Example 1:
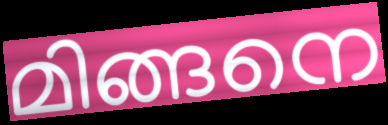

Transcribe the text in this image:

മിങ്ങനെ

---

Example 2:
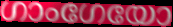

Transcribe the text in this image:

ഗാംഗേയോ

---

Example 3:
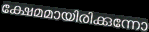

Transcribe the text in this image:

ക്ഷേമമായിരിക്കുന്നോ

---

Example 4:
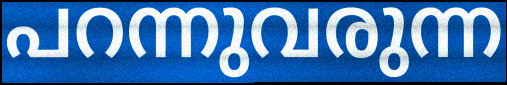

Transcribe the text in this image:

പറന്നുവരുന്ന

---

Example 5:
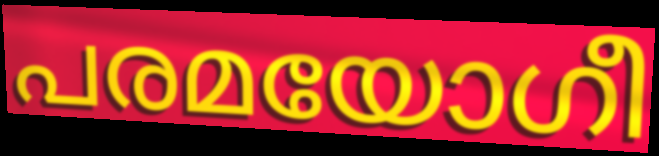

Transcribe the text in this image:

പരമയോഗീ